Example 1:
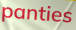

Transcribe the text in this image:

panties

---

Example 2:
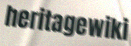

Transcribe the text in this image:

heritagewiki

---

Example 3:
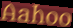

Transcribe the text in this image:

Aahoo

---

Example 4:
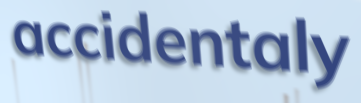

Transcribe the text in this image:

accidentaly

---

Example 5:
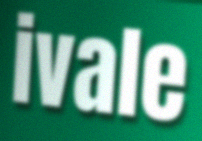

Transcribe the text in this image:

ivale